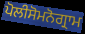
ਪੋਲੀਸੋਮਨੋਗ੍ਰਾਮ